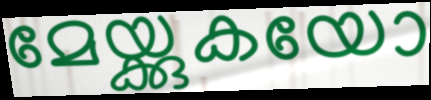
മേയ്ക്കുകയോ